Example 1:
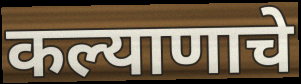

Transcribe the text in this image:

कल्याणाचे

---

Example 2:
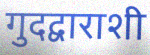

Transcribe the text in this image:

गुदद्वाराशी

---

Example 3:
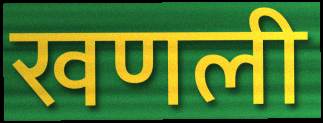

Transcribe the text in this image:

खणली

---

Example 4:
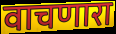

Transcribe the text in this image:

वाचणारा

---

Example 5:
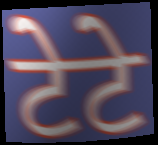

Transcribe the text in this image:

टेटे